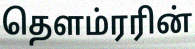
தௌம்ரரின்